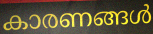
കാരണങ്ങൾ